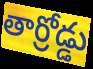
తార్రోడ్డు